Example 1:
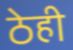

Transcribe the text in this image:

ठेही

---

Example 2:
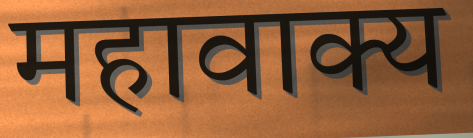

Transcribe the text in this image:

महावाक्य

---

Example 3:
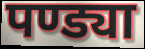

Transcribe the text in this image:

पण्ड्या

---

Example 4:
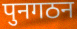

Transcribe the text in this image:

पुनगठन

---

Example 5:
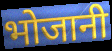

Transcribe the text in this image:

भोजानी